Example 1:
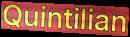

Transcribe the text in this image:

Quintilian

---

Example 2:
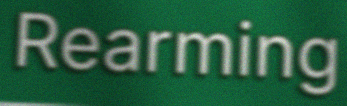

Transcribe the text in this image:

Rearming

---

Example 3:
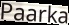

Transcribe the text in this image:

Paarka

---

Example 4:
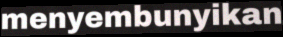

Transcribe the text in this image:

menyembunyikan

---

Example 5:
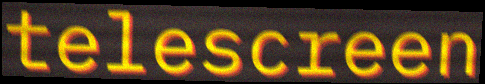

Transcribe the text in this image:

telescreen